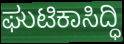
ಘುಟಿಕಾಸಿದ್ಧಿ